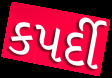
કપર્દી